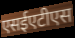
एसईएटीएस